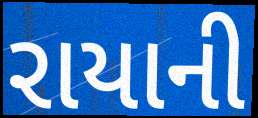
રાયાની